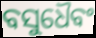
ବସୁଧୈବଂ